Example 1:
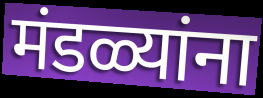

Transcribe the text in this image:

मंडळ्यांना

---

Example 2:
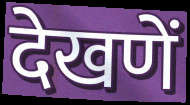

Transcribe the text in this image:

देखणें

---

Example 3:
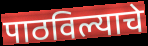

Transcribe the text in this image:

पाठविल्याचे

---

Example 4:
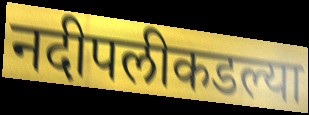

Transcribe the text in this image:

नदीपलीकडल्या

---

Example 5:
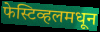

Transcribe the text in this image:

फेस्टिव्हलमधून